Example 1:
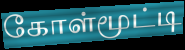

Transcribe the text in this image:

கோள்மூட்டி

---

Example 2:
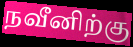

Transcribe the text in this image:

நவீனிற்கு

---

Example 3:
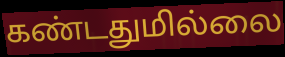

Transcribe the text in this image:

கண்டதுமில்லை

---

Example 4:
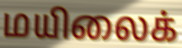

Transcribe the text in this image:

மயிலைக்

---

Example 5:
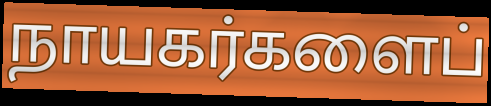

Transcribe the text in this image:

நாயகர்களைப்